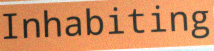
Inhabiting